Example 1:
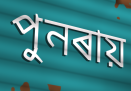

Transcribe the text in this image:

পুনৰায়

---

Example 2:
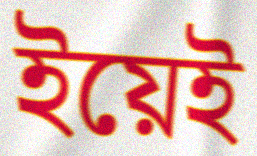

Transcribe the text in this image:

ইয়েই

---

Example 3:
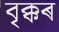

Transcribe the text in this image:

বৃক্কৰ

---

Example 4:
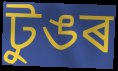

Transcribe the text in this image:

টুঙৰ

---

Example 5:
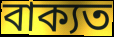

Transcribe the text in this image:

বাক্যত